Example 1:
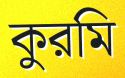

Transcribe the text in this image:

কুরমি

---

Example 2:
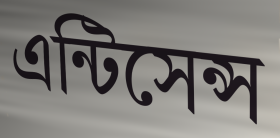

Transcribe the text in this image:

এন্টিসেন্স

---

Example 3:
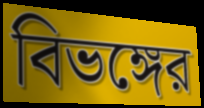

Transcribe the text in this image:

বিভঙ্গের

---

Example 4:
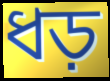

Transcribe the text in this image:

ধড়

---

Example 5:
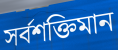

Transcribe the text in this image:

সর্বশক্তিমান